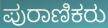
ಪುರಾಣಿಕರು